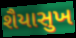
શૈયાસુખ